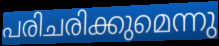
പരിചരിക്കുമെന്നു